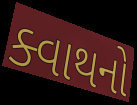
ક્વાથનો